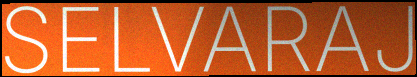
SELVARAJ